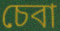
চেবা